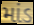
માંડ